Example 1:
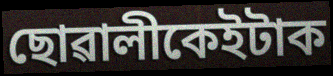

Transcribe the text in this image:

ছোৱালীকেইটাক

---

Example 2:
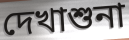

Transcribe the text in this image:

দেখাশুনা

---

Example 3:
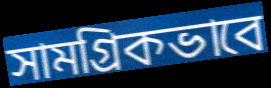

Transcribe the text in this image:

সামগ্ৰিকভাবে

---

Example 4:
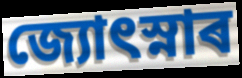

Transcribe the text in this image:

জ্যোৎস্নাৰ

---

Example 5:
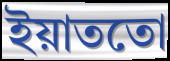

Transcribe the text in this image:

ইয়াততো